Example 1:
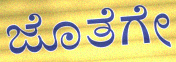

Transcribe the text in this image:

ಜೊತೆಗೇ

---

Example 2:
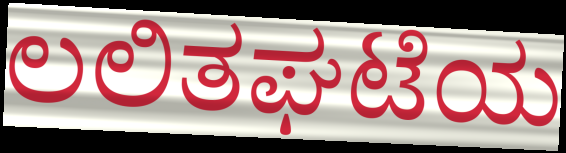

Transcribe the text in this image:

ಲಲಿತಘಟೆಯ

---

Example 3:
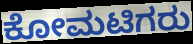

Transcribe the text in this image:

ಕೋಮಟಿಗರು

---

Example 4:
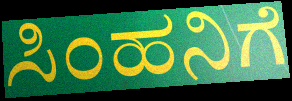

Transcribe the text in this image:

ಸಿಂಹನಿಗೆ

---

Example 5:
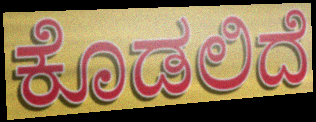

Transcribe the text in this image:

ಕೊಡಲಿದೆ